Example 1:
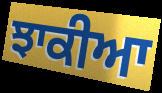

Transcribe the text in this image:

ਝਾਕੀਆ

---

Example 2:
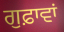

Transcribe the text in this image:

ਗੁਫ਼ਾਵਾਂ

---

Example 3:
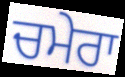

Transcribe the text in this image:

ਚਮੇਰਾ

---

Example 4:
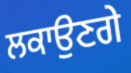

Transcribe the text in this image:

ਲਕਾਉਣਗੇ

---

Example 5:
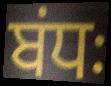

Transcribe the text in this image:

ਬਂਧਃ